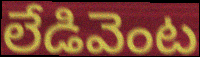
లేడివెంట